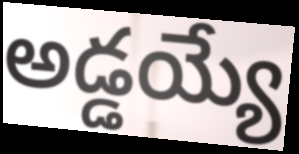
అడ్డయ్యే